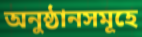
অনুষ্ঠানসমূহে